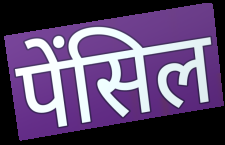
पेंसिल